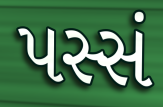
પસ્સં